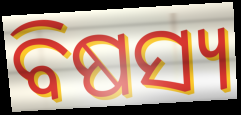
ବିଷସ୍ୟ